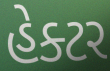
હેક્ટર